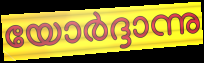
യോർദ്ദാന്നു